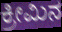
ಕ್ರೀಮಿನ